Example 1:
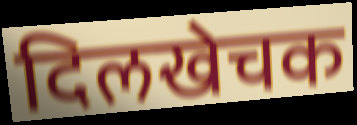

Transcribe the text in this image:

दिलखेचक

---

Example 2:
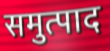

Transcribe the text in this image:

समुत्पाद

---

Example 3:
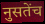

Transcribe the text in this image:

नुसतेंच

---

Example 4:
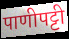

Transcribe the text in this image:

पाणीपट्टी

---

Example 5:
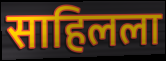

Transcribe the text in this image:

साहिलला